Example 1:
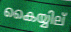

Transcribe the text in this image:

കൈയ്യില്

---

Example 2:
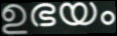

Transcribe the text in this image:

ഉഭയം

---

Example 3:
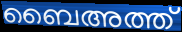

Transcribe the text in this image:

ബൈഅത്ത്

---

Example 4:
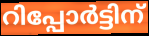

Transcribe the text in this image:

റിപ്പോർട്ടിന്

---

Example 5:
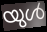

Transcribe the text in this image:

യുൾ